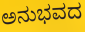
ಅನುಭವದ